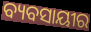
ବ୍ୟବସାୟୀର